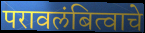
परावलंबित्वाचे